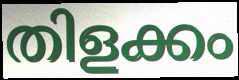
തിളക്കം